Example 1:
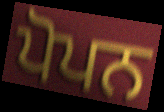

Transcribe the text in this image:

ਪੋਪਨ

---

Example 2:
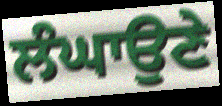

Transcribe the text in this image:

ਲੰਘਾਉਣੇ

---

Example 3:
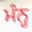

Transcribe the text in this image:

ਮੰਨ੍ਹ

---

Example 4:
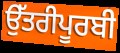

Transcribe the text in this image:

ਉੱਤਰੀਪੂਰਬੀ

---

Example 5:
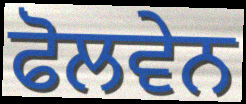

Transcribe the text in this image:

ਫੋਲਵੇਨ